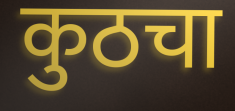
कुठचा